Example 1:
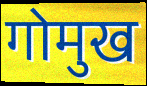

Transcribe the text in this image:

गोमुख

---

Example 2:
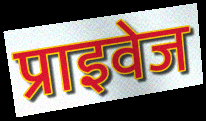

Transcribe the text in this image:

प्राइवेज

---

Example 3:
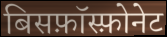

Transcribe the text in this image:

बिसफ़ॉस्फ़ोनेट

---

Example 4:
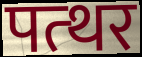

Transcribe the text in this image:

पत्‍थर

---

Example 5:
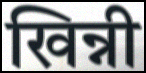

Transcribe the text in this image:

खिन्नी